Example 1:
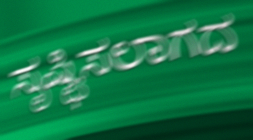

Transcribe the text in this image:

ಸೃಷ್ಟಿಸಲಾಗದ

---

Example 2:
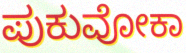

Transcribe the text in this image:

ಪುಕುವೋಕಾ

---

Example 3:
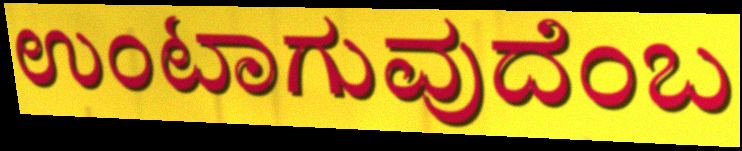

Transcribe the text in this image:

ಉಂಟಾಗುವುದೆಂಬ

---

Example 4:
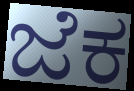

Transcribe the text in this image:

ಜೆಕ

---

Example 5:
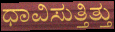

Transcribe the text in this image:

ಧಾವಿಸುತ್ತಿತ್ತು